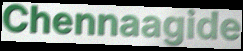
Chennaagide